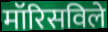
मॉरिसविले